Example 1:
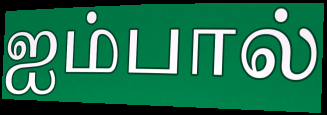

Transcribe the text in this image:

ஐம்பால்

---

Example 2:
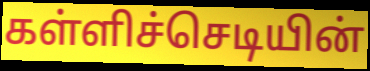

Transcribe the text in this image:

கள்ளிச்செடியின்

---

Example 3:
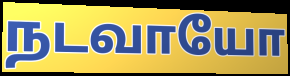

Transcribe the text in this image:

நடவாயோ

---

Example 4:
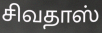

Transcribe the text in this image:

சிவதாஸ்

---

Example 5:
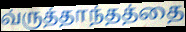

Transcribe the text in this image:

வ்ருத்தாந்தத்தை